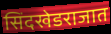
सिंदखेडराजात